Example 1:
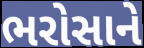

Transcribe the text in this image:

ભરોસાને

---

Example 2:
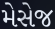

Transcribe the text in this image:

મેસેજ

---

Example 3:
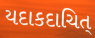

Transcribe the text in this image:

યદાકદાચિત્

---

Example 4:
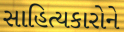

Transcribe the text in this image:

સાહિત્યકારોને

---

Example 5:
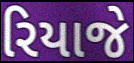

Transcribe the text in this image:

રિયાજે